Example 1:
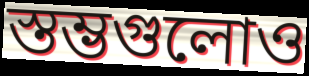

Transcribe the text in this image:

স্তম্ভগুলোও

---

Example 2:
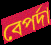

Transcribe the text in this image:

বেপর্দা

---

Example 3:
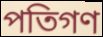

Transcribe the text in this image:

পতিগণ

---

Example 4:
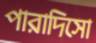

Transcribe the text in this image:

পারাদিসো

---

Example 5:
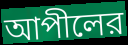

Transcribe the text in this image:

আপীলের